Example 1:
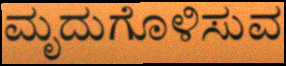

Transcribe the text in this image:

ಮೃದುಗೊಳಿಸುವ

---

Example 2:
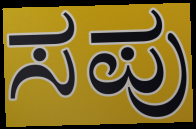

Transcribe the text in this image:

ಸಪು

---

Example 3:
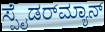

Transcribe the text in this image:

ಸ್ಪೈಡರ್‌ಮ್ಯಾನ್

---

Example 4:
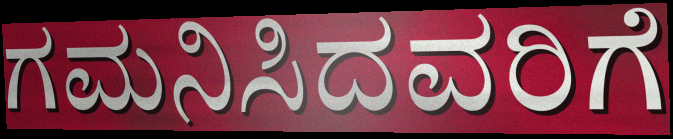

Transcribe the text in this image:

ಗಮನಿಸಿದವರಿಗೆ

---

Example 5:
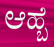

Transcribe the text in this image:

ಆಹ್ಬೆ